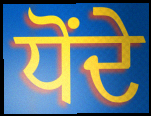
ਧੋਂਦੇ